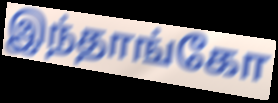
இந்தாங்கோ